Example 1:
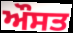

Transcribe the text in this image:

ਔਸਤ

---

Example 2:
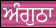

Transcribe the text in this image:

ਅੰਗੁਠਾ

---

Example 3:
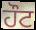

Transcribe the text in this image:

ਹੌਟ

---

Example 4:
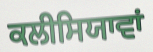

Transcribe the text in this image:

ਕਲੀਸਿਯਾਵਾਂ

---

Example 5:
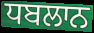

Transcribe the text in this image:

ਧਬਲਾਨ